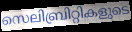
സെലിബ്രിറ്റികളുടെ